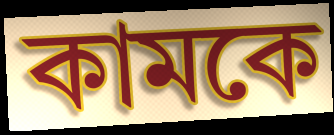
কামকে